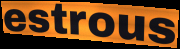
estrous